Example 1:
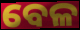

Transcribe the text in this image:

ବେଳ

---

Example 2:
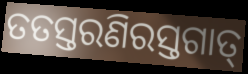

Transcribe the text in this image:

ତତସ୍ତରଣିରସ୍ତଗାତ୍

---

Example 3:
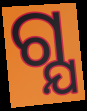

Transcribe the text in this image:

ଗ୍ଯ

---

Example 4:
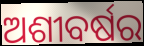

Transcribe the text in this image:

ଅଶୀବର୍ଷର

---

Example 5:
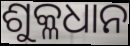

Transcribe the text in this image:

ଶୁକ୍ଳଧାନ